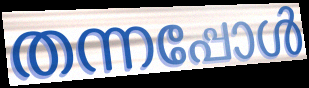
തന്നപ്പോൾ